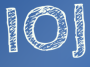
IOJ